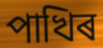
পাখিৰ